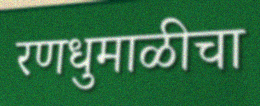
रणधुमाळीचा